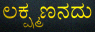
ಲಕ್ಷ್ಮಣನದು